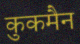
कुकमैन